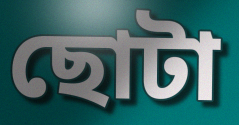
ছোটা